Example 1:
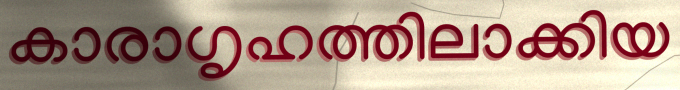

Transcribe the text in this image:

കാരാഗൃഹത്തിലാക്കിയ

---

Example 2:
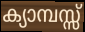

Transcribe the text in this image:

ക്യാമ്പസ്സ്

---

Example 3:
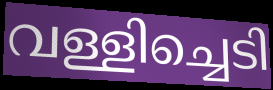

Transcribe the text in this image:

വള്ളിച്ചെടി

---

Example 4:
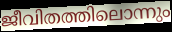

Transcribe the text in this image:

ജീവിതത്തിലൊന്നും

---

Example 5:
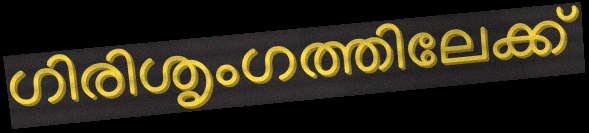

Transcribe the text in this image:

ഗിരിശൃംഗത്തിലേക്ക്